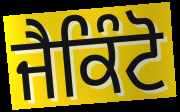
ਜੈਕਿੰਟੋ